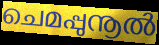
ചെമപ്പുനൂൽ